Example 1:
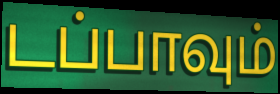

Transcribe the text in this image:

டப்பாவும்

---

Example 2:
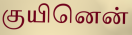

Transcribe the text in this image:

குயினென்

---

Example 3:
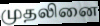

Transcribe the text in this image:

முதலினை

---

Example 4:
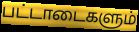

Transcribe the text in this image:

பட்டாடைகளும்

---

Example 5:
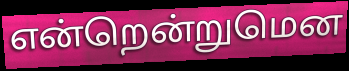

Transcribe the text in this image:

என்றென்றுமென